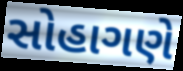
સોહાગણે